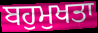
ਬਹੁਮੁਖਤਾ